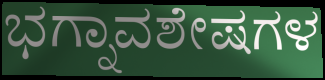
ಭಗ್ನಾವಶೇಷಗಳ